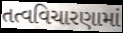
તત્વવિચારણામાં